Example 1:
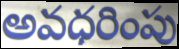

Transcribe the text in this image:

అవధరింపు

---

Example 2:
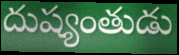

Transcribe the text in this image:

దుష్యంతుడు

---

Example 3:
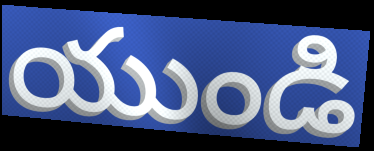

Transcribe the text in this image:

యుండి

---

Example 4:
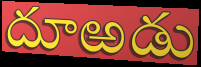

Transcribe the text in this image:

దూఱడు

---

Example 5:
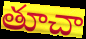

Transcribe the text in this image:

తూచా